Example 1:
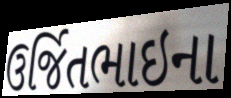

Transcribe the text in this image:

ઉર્જિતભાઇના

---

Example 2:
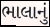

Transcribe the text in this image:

ભાલાનું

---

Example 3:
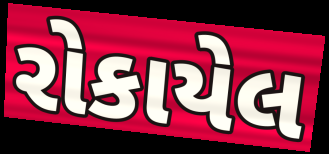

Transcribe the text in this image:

રોકાયેલ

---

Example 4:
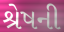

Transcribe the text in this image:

શ્રેષની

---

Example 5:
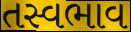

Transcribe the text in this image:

તસ્વભાવ